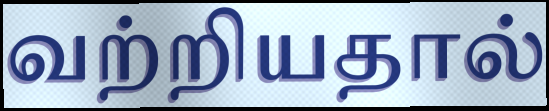
வற்றியதால்